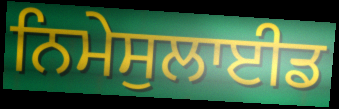
ਨਿਮੇਸੁਲਾਈਡ